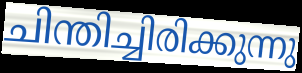
ചിന്തിച്ചിരിക്കുന്നു